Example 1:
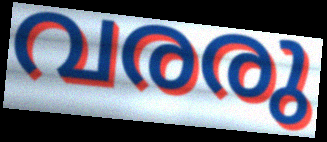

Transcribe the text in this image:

വരരു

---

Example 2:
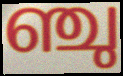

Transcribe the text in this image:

ഞ്ചു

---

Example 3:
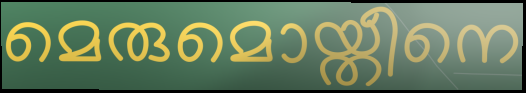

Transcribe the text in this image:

മെരുമൊയ്തീനെ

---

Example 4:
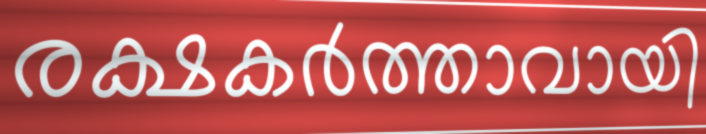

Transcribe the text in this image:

രക്ഷകർത്താവായി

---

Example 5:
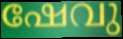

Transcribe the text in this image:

ഷേവു